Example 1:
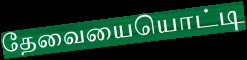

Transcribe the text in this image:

தேவையையொட்டி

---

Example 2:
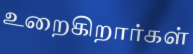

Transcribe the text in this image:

உறைகிறார்கள்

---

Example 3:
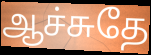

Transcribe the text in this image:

ஆச்சுதே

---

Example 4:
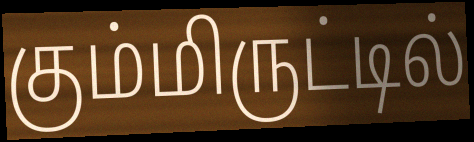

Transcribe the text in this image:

கும்மிருட்டில்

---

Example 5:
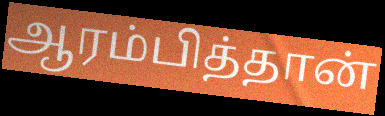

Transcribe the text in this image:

ஆரம்பித்தான்